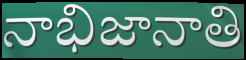
నాభిజానాతి